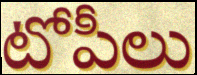
టోపీలు